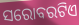
ସରୋବରଟିଏ